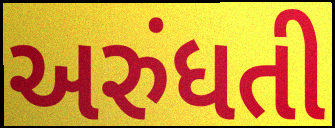
અરુંધતી